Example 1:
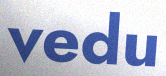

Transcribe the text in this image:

vedu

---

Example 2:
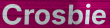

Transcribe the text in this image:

Crosbie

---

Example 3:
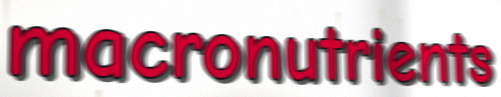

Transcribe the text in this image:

macronutrients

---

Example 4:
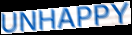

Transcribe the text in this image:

UNHAPPY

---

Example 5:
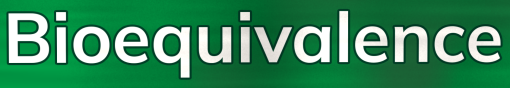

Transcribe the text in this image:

Bioequivalence